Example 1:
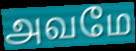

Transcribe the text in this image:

அவமே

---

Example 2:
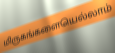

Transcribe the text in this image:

மிருகங்களையெல்லாம்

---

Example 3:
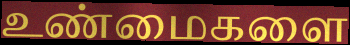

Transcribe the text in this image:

உண்மைகளை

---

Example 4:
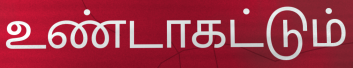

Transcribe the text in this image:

உண்டாகட்டும்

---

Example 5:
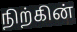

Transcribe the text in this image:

நிற்கின்